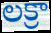
లక్రా